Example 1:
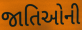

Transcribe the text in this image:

જાતિઓની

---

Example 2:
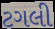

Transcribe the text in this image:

ટગલી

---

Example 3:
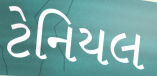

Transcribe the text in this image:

ટેનિયલ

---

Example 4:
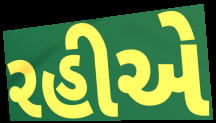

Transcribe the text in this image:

રહીએ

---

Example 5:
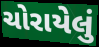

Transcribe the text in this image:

ચોરાયેલું